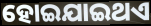
ହୋଇଯାଇଥଏ